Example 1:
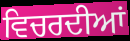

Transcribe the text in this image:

ਵਿਚਰਦੀਆਂ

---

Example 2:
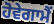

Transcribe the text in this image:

ਹੋਵੇਗਾਮੈਂ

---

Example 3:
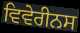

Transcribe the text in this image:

ਵਿਵੇਰੀਨਸ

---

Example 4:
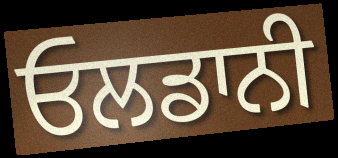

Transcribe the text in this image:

ਓਲਡਾਨੀ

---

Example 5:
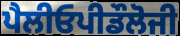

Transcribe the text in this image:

ਪੈਲੀਓਪੀਡੌਲੋਜੀ